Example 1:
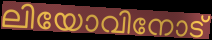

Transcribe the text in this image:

ലിയോവിനോട്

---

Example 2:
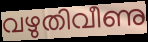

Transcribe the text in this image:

വഴുതിവീണു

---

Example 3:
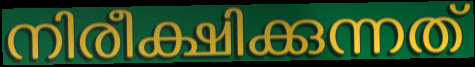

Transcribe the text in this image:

നിരീക്ഷിക്കുന്നത്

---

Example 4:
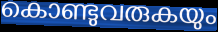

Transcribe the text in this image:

കൊണ്ടുവരുകയും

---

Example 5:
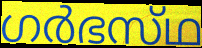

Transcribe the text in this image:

ഗർഭസ്‌ഥ